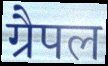
ग्रैपल